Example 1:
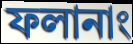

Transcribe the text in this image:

ফলানাং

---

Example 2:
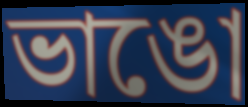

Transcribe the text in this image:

ভাঙো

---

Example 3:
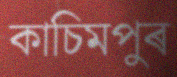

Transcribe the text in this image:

কাচিমপুৰ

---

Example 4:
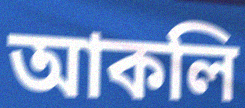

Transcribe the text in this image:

আকলি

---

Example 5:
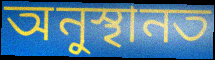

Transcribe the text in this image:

অনুস্থানত